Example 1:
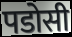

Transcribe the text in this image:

पडोसी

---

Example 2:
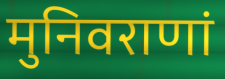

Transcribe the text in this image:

मुनिवराणां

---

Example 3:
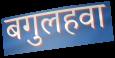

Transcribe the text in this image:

बगुलहवा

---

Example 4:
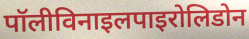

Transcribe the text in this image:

पॉलीविनाइलपाइरोलिडोन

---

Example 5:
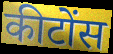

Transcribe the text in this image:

कीटोंस